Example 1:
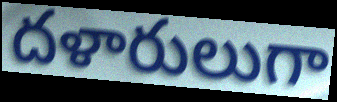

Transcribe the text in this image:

దళారులుగా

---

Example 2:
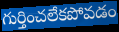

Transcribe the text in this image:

గుర్తించలేకపోవడం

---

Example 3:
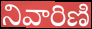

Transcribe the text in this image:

నివారిణి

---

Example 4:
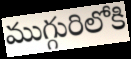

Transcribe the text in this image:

ముగ్గురిలోకి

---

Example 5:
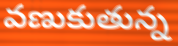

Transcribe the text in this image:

వణుకుతున్న